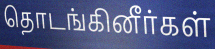
தொடங்கினீர்கள்